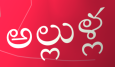
అల్లుళ్ల